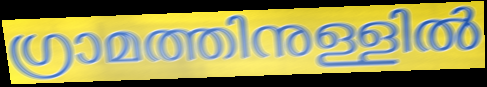
ഗ്രാമത്തിനുള്ളിൽ